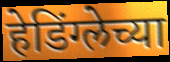
हेडिंग्लेच्या